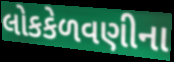
લોકકેળવણીના